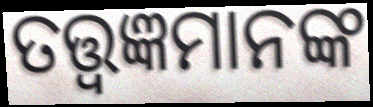
ତତ୍ତ୍ୱଜ୍ଞମାନଙ୍କ